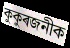
কুকুৰজনীক